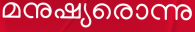
മനുഷ്യരൊന്നു